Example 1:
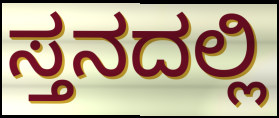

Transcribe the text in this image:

ಸ್ತನದಲ್ಲಿ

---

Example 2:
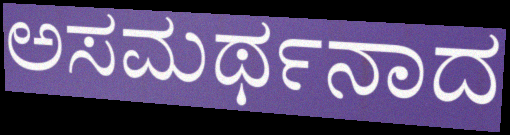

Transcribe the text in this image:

ಅಸಮರ್ಥನಾದ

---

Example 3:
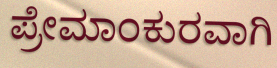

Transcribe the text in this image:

ಪ್ರೇಮಾಂಕುರವಾಗಿ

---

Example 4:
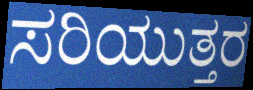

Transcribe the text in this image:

ಸರಿಯುತ್ತರ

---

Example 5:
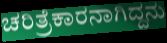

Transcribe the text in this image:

ಚರಿತ್ರೆಕಾರನಾಗಿದ್ದನು